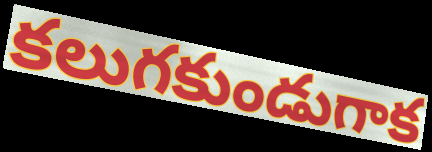
కలుగకుండుగాక